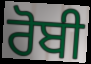
ਰੋਬੀ